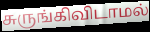
சுருங்கிவிடாமல்